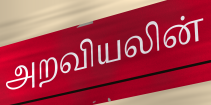
அறவியலின்